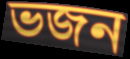
ভজন